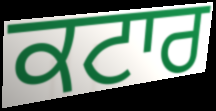
ਕਟਾਰ